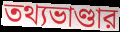
তথ্যভাণ্ডার